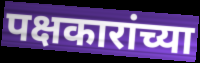
पक्षकारांच्या